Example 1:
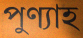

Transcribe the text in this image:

পুণ্যাহ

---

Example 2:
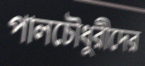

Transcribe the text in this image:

পালচৌধুরীদের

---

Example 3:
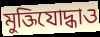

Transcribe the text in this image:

মুক্তিযোদ্ধাও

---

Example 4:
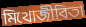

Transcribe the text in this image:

মিথোজীবিতা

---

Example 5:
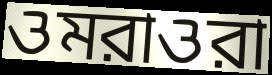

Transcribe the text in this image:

ওমরাওরা